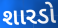
શારડો